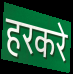
हरकरे